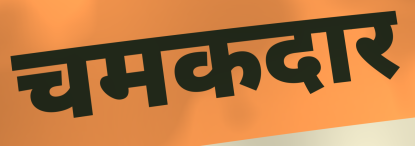
चमकदार